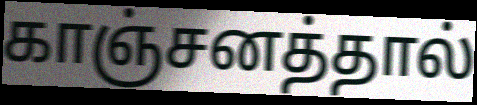
காஞ்சனத்தால்